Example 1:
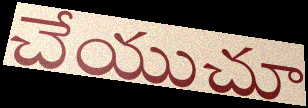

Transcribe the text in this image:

చేయుచూ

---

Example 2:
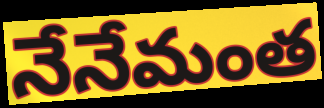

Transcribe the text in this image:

నేనేమంత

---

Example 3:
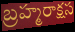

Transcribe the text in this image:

బ్రహ్మరాక్షస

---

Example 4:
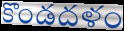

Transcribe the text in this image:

కొండదళం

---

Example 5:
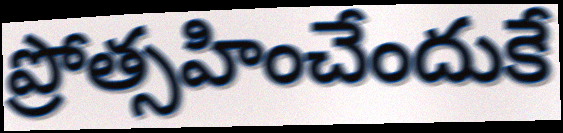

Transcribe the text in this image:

ప్రోత్సహించేందుకే